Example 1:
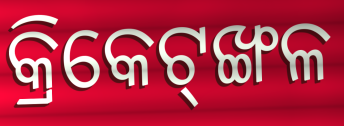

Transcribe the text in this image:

କ୍ରିକେଟ୍‌ଙ୍ଖଳ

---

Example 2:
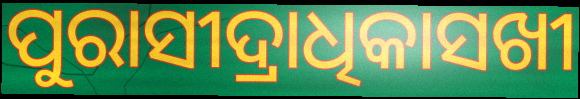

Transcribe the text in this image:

ପୁରାସୀଦ୍ରାଧିକାସଖୀ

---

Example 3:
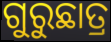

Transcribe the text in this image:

ଗୁରୁଛାତ୍ର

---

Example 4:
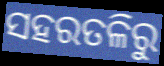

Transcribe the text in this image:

ସହରତଳିରୁ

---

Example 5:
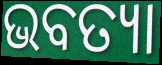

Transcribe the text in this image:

ଭବତ୍ୟା